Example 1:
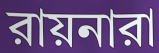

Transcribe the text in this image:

রায়নারা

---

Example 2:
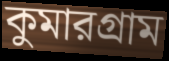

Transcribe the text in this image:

কুমারগ্রাম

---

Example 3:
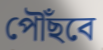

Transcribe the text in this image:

পৌঁছবে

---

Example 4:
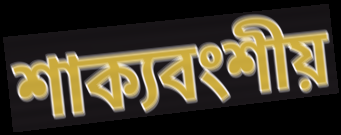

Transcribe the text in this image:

শাক্যবংশীয়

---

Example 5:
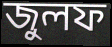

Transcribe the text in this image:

জুলফ